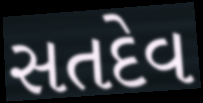
સતદેવ